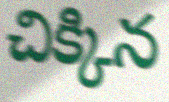
చిక్కిన